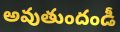
అవుతుందండీ